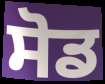
ਸੋਡ